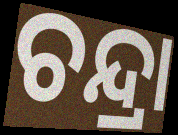
ଚନ୍ଦ୍ରା